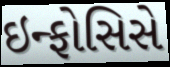
ઇન્ફોસિસે